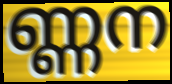
ണ്ണന